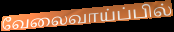
வேலைவாய்ப்பில்